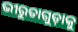
ଭୀରୁତାଗୁଡ଼ାକୁ